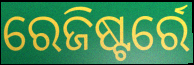
ରେଜିଷ୍ଟର୍ରେ